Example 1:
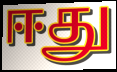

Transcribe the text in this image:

ஈது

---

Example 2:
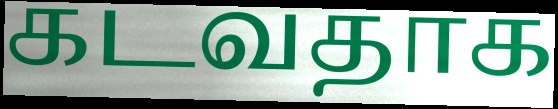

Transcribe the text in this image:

கடவதாக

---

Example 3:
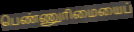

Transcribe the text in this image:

பெண்ணுரிமையைப்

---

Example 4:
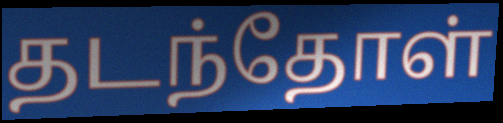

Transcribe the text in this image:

தடந்தோள்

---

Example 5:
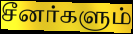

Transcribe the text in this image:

சீனர்களும்